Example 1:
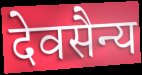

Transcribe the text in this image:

देवसैन्य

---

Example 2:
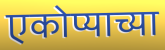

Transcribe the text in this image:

एकोप्याच्या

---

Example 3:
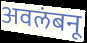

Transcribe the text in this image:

अवलंबनू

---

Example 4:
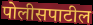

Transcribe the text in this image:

पोलीसपाटील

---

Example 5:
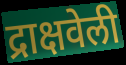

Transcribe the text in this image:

द्राक्षवेली